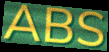
ABS